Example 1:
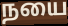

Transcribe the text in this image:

நயை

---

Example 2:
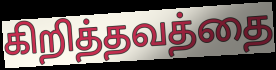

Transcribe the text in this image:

கிறித்தவத்தை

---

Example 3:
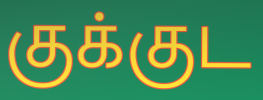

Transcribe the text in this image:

குக்குட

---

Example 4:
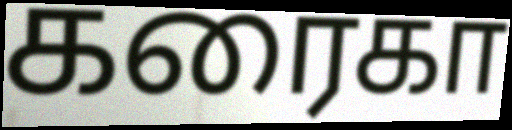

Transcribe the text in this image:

கரைகா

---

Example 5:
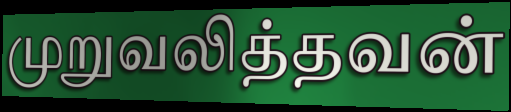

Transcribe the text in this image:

முறுவலித்தவன்